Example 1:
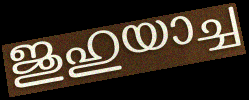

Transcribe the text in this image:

ജുഹുയാച്ച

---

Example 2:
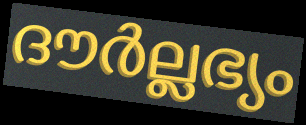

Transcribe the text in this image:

ദൗർല്ലഭ്യം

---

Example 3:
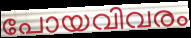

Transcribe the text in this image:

പോയവിവരം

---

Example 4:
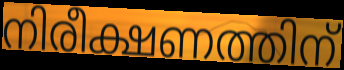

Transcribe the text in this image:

നിരീക്ഷണത്തിന്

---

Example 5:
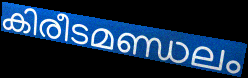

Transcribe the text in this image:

കിരീടമണ്ഡലം